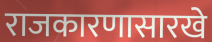
राजकारणासारखे